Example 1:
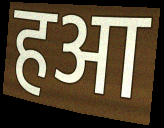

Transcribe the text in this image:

हआ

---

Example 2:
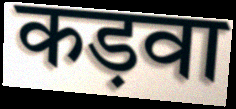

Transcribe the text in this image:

कड़वा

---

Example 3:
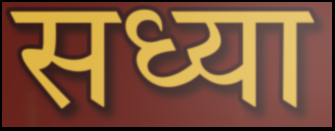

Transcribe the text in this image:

सध्या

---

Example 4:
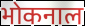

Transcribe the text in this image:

भोकनाल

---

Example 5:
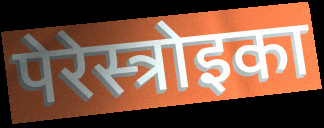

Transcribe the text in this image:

पेरेस्त्रोइका